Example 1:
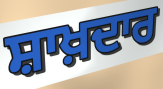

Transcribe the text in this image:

ਸ਼ਾਖ਼ਦਾਰ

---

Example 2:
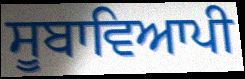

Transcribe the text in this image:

ਸੂਬਾਵਿਆਪੀ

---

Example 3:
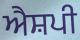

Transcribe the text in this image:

ਐਸ਼ਪੀ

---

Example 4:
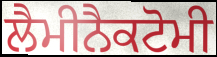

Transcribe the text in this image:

ਲੈਮੀਨੈਕਟੋਮੀ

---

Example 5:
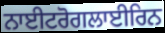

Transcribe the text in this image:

ਨਾਈਟਰੋਗਲਾਈਰਿਨ